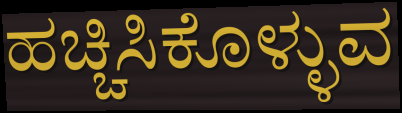
ಹಚ್ಚಿಸಿಕೊಳ್ಳುವ